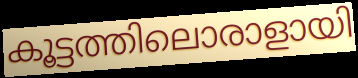
കൂട്ടത്തിലൊരാളായി